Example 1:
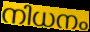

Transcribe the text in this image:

നിധനം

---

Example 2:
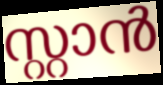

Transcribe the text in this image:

സ്റ്റാൻ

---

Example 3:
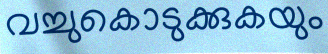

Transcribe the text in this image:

വച്ചുകൊടുക്കുകയും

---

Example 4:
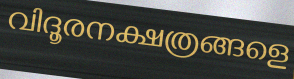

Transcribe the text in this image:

വിദൂരനക്ഷത്രങ്ങളെ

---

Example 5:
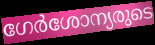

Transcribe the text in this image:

ഗേർശോന്യരുടെ